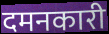
दमनकारी